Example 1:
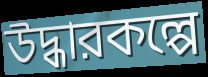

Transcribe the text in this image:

উদ্ধারকল্পে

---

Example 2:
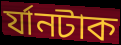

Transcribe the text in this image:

র্যানটাক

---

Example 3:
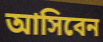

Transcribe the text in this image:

আসিবেন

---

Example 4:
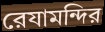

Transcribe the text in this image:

রেযামন্দির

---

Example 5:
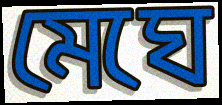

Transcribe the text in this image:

মেঘে